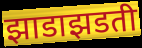
झाडाझडती